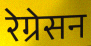
रेग्रेसन